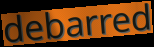
debarred